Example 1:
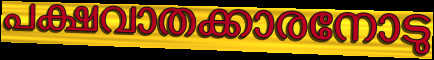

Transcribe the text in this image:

പക്ഷവാതക്കാരനോടു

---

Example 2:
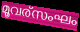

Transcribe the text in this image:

മൂവര്സംഘം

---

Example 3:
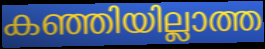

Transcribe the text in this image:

കഞ്ഞിയില്ലാത്ത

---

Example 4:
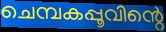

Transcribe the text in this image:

ചെമ്പകപ്പൂവിന്റെ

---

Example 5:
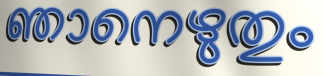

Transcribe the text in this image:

ഞാനെഴുതും